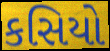
કસિયો